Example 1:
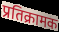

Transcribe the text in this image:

प्रतिक्रामक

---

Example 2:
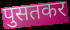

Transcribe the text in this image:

पुसतकर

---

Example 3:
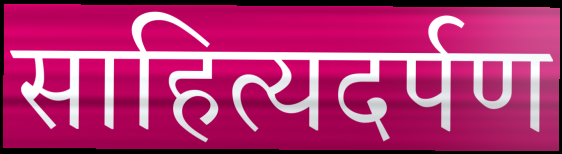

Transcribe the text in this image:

साहित्यदर्पण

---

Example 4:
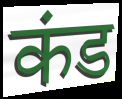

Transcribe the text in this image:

कंड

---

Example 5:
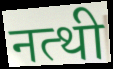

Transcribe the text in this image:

नत्थी